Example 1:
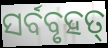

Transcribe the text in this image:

ସର୍ବବୃହତ୍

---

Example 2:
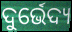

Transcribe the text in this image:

ଦୁର୍ଭେଦ୍ୟ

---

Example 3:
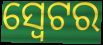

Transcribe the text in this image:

ସ୍ଵେଟର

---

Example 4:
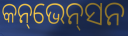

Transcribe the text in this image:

କନ୍‌ଭେନ୍‌ସନ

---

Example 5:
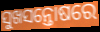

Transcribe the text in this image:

ସୁଖସନ୍ତୋଷରେ